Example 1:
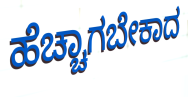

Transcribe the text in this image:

ಹೆಚ್ಚಾಗಬೇಕಾದ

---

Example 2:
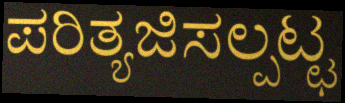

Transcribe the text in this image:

ಪರಿತ್ಯಜಿಸಲ್ಪಟ್ಟ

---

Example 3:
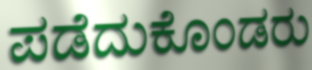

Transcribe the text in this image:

ಪಡೆದುಕೊಂಡರು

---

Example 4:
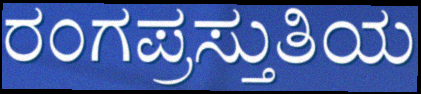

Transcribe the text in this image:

ರಂಗಪ್ರಸ್ತುತಿಯ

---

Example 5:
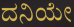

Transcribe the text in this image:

ದನಿಯೇ